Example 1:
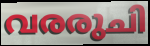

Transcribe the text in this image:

വരരുചി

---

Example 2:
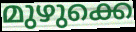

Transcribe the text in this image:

മുഴുക്കെ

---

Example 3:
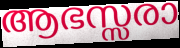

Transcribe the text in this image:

ആഭസ്സരാ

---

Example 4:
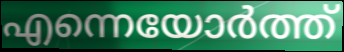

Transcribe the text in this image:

എന്നെയോർത്ത്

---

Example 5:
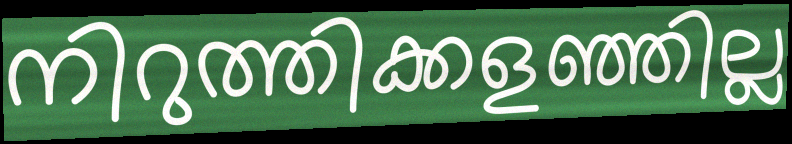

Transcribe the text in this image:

നിറുത്തിക്കളഞ്ഞില്ല